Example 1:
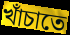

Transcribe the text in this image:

খাঁচাতে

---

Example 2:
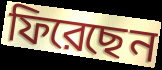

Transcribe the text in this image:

ফিরেছেন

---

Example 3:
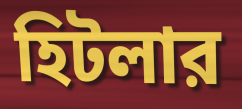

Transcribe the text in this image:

হিটলার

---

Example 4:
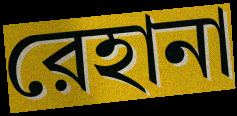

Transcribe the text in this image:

রেহানা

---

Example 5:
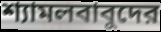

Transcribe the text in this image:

শ্যামলবাবুদের